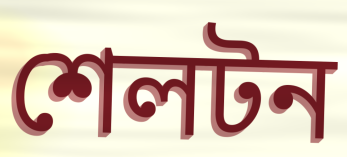
শেলটন